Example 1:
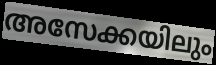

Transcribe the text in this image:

അസേക്കയിലും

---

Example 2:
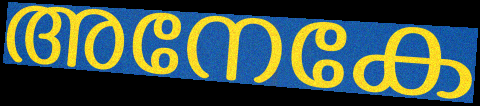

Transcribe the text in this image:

അനേകേ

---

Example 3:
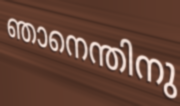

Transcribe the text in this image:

ഞാനെന്തിനു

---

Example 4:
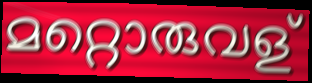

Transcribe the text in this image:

മറ്റൊരുവള്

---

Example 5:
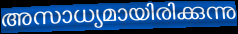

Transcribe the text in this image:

അസാധ്യമായിരിക്കുന്നു